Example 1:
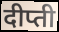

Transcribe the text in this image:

दीप्ती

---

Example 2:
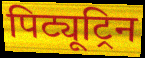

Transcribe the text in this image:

पिट्यूट्रिन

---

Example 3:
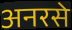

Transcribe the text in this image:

अनरसे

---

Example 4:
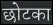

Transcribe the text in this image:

छोटका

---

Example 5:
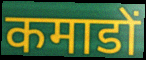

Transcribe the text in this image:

कमाडों